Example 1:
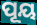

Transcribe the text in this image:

ପୂୟ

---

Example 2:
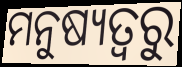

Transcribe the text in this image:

ମନୁଷ୍ୟତ୍ୱରୁ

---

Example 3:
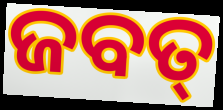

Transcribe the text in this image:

ଜବତ୍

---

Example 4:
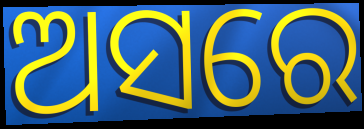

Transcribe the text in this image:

ଅସରେ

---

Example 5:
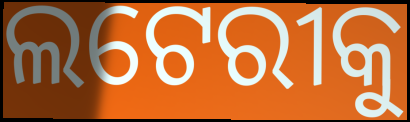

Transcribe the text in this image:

ଲଟେରୀକୁ